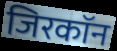
जिरकॉन